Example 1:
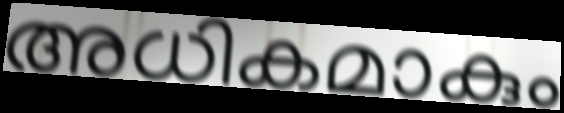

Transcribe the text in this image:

അധികമാകും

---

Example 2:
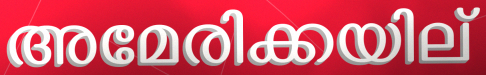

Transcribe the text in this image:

അമേരിക്കയില്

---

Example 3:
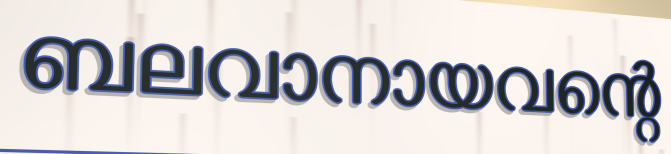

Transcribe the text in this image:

ബലവാനായവന്റെ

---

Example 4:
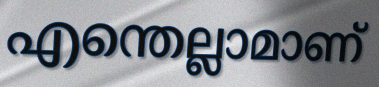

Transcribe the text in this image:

എന്തെല്ലാമാണ്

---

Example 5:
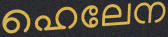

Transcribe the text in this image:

ഹെലേന